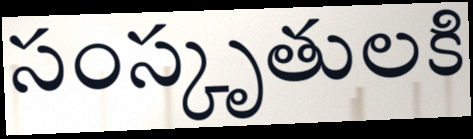
సంస్కృతులకి